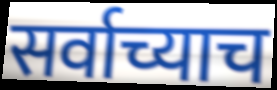
सर्वाच्याच